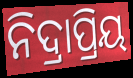
ନିଦ୍ରାପ୍ରିୟ